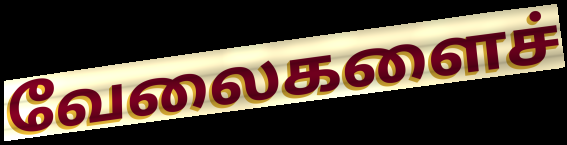
வேலைகளைச்